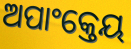
ଅପାଂକ୍ତେୟ